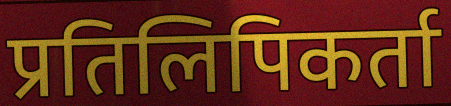
प्रतिलिपिकर्ता